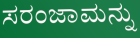
ಸರಂಜಾಮನ್ನು